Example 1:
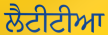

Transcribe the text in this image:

ਲੈਟੀਟੀਆ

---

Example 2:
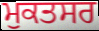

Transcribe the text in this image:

ਮੁਕਤਸਰ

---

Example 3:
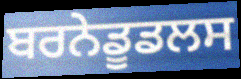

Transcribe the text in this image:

ਬਰਨੇਡੂਡਲਸ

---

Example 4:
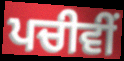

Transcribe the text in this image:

ਪਚੀਵੀਂ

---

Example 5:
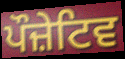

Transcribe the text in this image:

ਪੌਜ਼ੇਟਿਵ